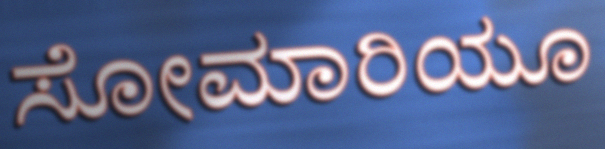
ಸೋಮಾರಿಯೂ